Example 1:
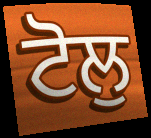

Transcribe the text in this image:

ਟੋਲੁ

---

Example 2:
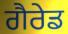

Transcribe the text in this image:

ਗੈਰੇਡ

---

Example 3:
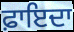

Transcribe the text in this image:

ਫ਼ਾਇਦਾ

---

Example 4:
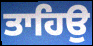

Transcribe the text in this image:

ਤਾਹਿਉ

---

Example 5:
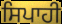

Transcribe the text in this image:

ਸਿਪਾਹੀ